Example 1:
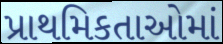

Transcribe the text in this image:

પ્રાથમિકતાઓમાં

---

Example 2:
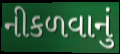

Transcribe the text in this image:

નીકળવાનું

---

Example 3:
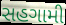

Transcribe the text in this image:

સહગામી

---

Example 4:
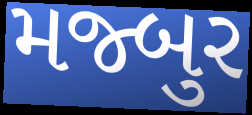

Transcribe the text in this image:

મજ્બુર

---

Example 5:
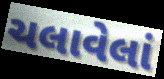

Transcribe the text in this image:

ચલાવેલાં